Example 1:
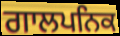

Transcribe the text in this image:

ਗਾਲਪਨਿਕ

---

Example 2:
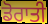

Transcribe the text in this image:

ਡੋਰਾਤੀ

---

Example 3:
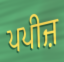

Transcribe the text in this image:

ਪਪੀਜ਼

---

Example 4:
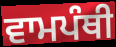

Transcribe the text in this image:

ਵਾਮਪੰਥੀ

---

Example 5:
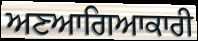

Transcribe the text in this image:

ਅਣਆਗਿਆਕਾਰੀ